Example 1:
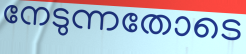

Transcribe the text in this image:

നേടുന്നതോടെ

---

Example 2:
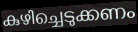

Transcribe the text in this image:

കുഴിച്ചെടുക്കണം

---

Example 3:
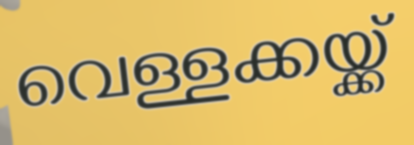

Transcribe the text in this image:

വെള്ളക്കയ്ക്ക്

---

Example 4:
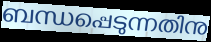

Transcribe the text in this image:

ബന്ധപ്പെടുന്നതിനു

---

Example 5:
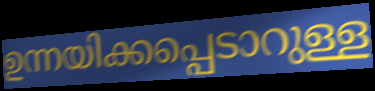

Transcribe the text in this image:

ഉന്നയിക്കപ്പെടാറുള്ള